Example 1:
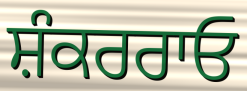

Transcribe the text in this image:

ਸ਼ੰਕਰਰਾਓ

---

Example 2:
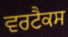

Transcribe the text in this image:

ਵਰਟੈਕਸ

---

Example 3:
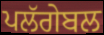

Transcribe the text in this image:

ਪਲੱਗੇਬਲ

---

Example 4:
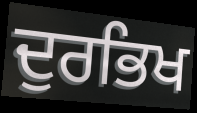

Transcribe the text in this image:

ਦੁਰਭਿਖ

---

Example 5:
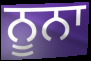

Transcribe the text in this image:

ਨੂਨਾ